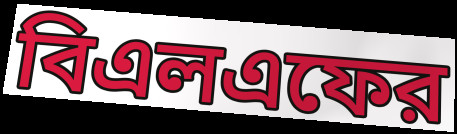
বিএলএফের